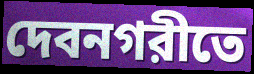
দেবনগরীতে